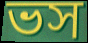
ভস